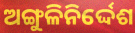
ଅଙ୍ଗୁଳିନିର୍ଦ୍ଦେଶ